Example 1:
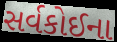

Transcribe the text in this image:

સર્વકોઈના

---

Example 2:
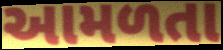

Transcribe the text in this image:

આમળતા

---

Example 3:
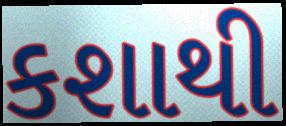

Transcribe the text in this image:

કશાથી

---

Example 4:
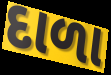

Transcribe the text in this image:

દાળા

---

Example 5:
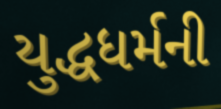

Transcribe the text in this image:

યુદ્ધધર્મની